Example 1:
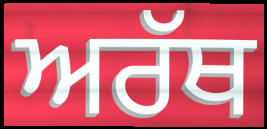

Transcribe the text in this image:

ਅਰੱਥ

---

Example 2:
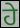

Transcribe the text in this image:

ਹੇ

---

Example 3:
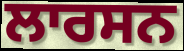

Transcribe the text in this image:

ਲਾਰਸਨ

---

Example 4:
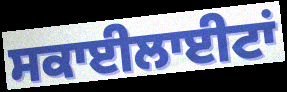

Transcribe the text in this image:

ਸਕਾਈਲਾਈਟਾਂ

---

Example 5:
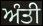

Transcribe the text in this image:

ਅੰਤੀ